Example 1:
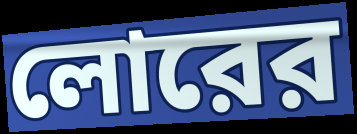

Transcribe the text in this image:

লোরের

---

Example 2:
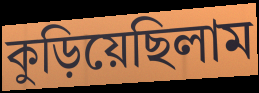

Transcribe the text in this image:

কুড়িয়েছিলাম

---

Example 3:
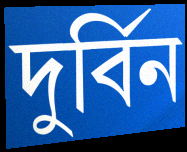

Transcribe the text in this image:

দুর্বিন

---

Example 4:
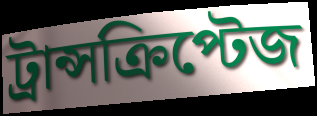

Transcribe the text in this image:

ট্রান্সক্রিপ্টেজ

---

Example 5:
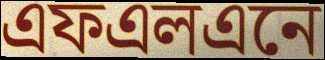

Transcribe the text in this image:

এফএলএনে